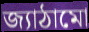
জ্যাঠামো